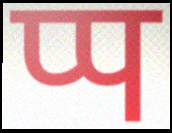
प्प